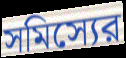
সমিস্যের